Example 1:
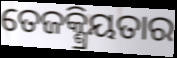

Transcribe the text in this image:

ତେଜକ୍ଶ୍ରିୟତାର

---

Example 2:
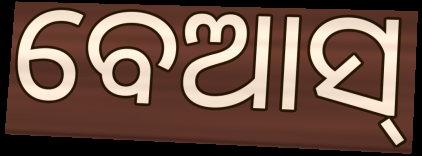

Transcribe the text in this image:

ବେଆସ୍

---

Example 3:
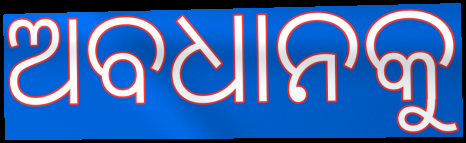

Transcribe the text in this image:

ଅବଧାନକୁ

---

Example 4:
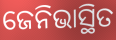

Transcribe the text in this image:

ଜେନିଭାସ୍ଥିତ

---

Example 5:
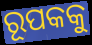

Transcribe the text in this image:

ରୂପକକୁ